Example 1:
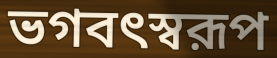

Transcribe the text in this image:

ভগবৎস্বরূপ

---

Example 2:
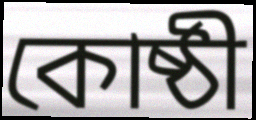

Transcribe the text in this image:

কোষ্ঠী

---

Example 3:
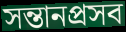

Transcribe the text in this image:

সন্তানপ্রসব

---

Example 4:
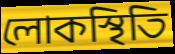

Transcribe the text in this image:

লোকস্থিতি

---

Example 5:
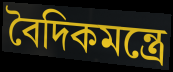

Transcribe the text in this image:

বৈদিকমন্ত্রে